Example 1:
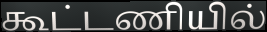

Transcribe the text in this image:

கூட்டணியில்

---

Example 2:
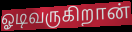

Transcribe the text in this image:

ஓடிவருகிறான்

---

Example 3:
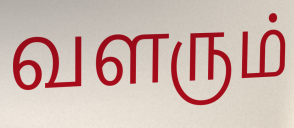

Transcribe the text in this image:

வளரும்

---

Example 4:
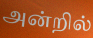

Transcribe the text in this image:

அன்றில்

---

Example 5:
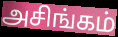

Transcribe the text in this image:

அசிங்கம்